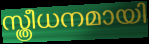
സ്ത്രീധനമായി